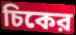
চিকের